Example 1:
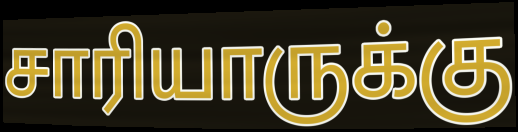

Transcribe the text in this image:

சாரியாருக்கு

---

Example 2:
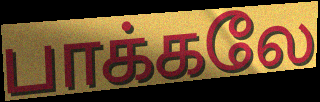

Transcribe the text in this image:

பாக்கலே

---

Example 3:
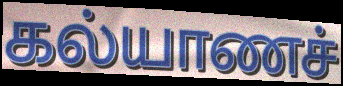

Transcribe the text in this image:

கல்யாணச்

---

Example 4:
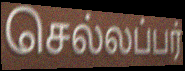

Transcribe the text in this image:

செல்லப்பர்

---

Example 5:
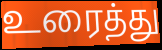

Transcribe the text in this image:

உரைத்து